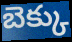
బెక్కు